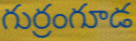
గుర్రంగూడ